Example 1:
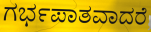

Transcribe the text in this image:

ಗರ್ಭಪಾತವಾದರೆ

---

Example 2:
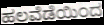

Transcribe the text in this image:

ಹಲವೆಡೆಯಿಂದ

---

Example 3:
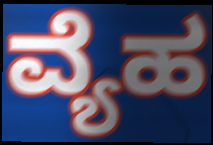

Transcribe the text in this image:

ವ್ಯೆಹ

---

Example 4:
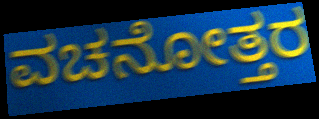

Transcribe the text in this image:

ವಚನೋತ್ತರ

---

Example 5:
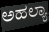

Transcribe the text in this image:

ಅಹಲ್ಯಾ